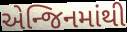
એન્જિનમાંથી